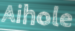
Aihole